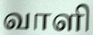
வாளி